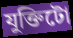
যুক্তিটো